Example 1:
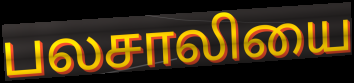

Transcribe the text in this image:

பலசாலியை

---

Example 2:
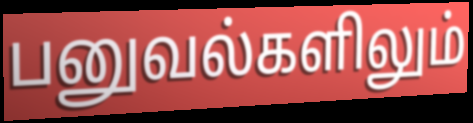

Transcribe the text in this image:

பனுவல்களிலும்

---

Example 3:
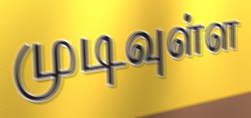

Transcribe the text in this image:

முடிவுள்ள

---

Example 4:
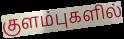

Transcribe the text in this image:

குளம்புகளில்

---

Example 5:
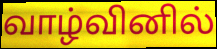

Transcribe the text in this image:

வாழ்வினில்